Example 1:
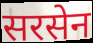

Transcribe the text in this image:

सरसेन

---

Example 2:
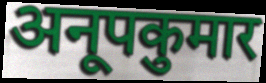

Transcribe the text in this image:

अनूपकुमार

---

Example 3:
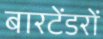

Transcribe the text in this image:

बारटेंडरों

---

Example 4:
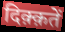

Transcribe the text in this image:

दिक़्क़तें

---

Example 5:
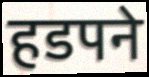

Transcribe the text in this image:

हडपने